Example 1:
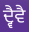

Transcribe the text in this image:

ਦ੍ਵੈਵੈ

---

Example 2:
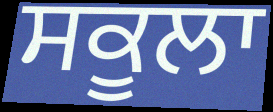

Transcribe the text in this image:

ਸਕੂਲਾ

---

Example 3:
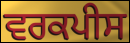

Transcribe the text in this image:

ਵਰਕਪੀਸ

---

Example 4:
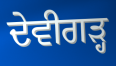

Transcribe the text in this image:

ਦੇਵੀਗੜ੍ਹ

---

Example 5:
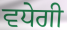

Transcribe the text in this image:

ਵਧੇਗੀ